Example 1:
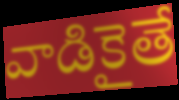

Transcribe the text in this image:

వాడికైతే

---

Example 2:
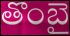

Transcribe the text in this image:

తొంబై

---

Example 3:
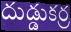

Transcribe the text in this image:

దుడ్డుకర్ర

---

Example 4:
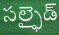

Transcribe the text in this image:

సల్ఫైడ్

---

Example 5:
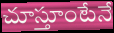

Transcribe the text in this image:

చూస్తూంటేనే